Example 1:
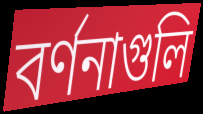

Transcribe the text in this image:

বর্ণনাগুলি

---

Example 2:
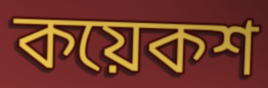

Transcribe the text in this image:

কয়েকশ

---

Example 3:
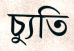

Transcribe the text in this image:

চ্যুতি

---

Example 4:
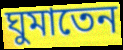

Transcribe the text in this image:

ঘুমাতেন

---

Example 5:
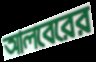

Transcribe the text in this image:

আলবেরের